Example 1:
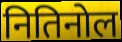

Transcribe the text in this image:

नितिनोल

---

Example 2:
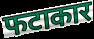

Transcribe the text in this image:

फटाकार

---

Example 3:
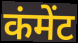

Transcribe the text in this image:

कंमेंट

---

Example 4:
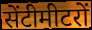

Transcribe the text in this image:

सेंटीमीटरों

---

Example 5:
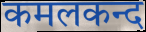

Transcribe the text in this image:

कमलकन्द